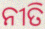
ନୀତି